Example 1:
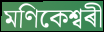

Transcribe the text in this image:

মণিকেশ্বৰী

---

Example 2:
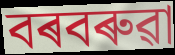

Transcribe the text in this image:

বৰবৰুৱা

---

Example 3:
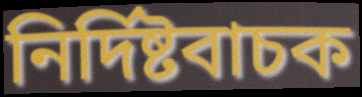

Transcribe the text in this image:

নিৰ্দিষ্টবাচক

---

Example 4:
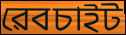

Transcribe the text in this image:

ৱেবচাইট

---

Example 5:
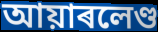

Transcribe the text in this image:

আয়াৰলেণ্ড